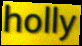
holly